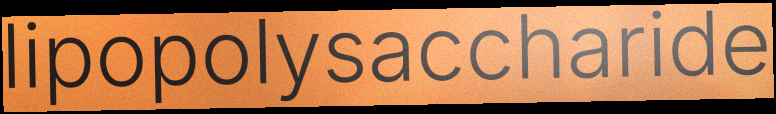
lipopolysaccharide